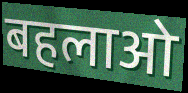
बहलाओ